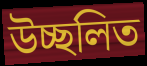
উচ্ছলিত